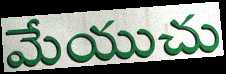
మేయుచు